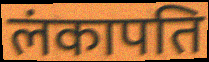
लंकापति